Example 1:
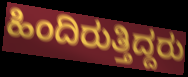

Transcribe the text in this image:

ಹಿಂದಿರುತ್ತಿದ್ದರು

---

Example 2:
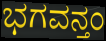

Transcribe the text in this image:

ಭಗವನ್ತಂ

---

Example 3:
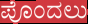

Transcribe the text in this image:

ಪೊಂದಲು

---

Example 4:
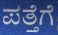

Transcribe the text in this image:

ಪತ್ತೆಗೆ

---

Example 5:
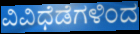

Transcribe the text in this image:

ವಿವಿಧೆಡೆಗಳಿಂದ